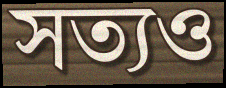
সত্যও